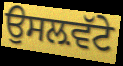
ਉਸਲ਼ਵੱਟੇ